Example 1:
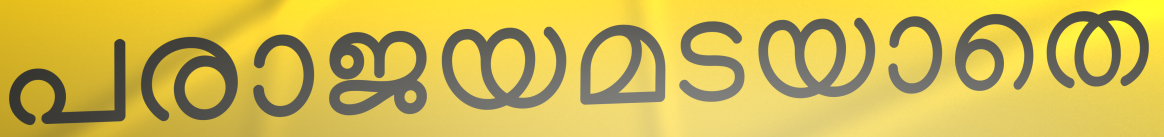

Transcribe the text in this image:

പരാജയമടയാതെ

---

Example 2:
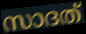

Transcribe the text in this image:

സാദത്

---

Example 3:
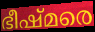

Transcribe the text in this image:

ഭീഷ്മരെ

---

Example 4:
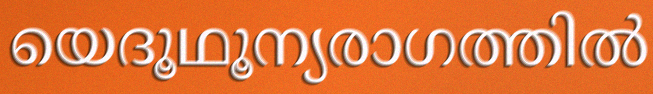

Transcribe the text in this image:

യെദൂഥൂന്യരാഗത്തിൽ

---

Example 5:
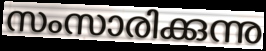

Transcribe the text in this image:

സംസാരിക്കുന്നു